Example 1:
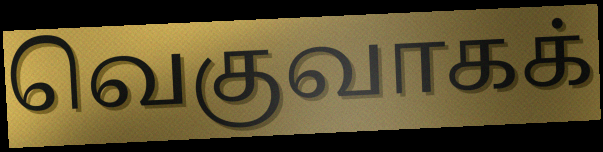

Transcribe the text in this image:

வெகுவாகக்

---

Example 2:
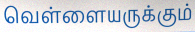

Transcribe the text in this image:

வெள்ளையருக்கும்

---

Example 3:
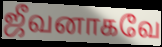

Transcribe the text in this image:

ஜீவனாகவே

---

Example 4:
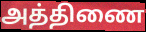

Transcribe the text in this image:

அத்திணை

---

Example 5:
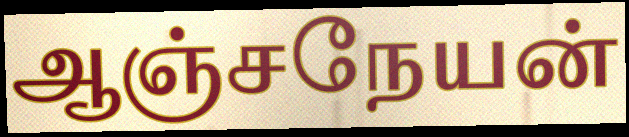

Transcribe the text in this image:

ஆஞ்சநேயன்